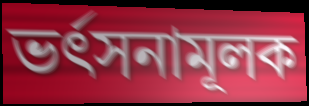
ভর্ৎসনামূলক